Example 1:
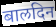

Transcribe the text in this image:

बालदिन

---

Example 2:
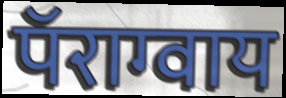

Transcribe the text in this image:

पॅराग्वाय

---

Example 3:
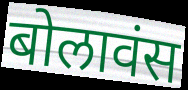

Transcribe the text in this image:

बोलावंस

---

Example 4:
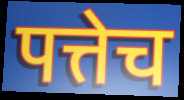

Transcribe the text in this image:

पत्तेच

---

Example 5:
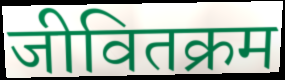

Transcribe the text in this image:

जीवितक्रम